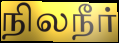
நிலநீர்